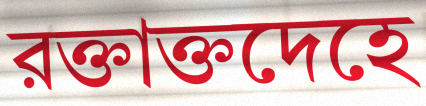
রক্তাক্তদেহে